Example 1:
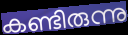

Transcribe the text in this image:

കണ്ടിരുന്നു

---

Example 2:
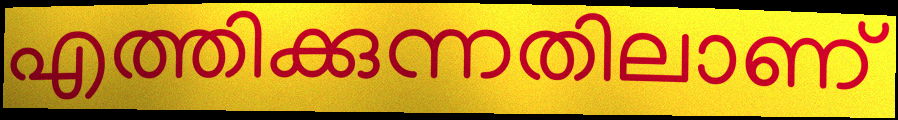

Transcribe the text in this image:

എത്തിക്കുന്നതിലാണ്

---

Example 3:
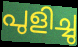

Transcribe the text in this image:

പുളിച്ചു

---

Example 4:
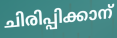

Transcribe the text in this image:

ചിരിപ്പിക്കാന്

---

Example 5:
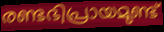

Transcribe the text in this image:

രണ്ടഭിപ്രായമുണ്ട്